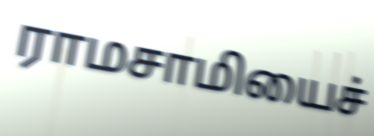
ராமசாமியைச்